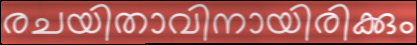
രചയിതാവിനായിരിക്കും